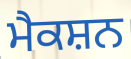
ਮੈਕਸ਼ਨ